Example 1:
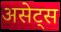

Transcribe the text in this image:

असेट्स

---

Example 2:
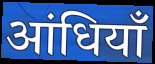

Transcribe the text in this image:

आंधियाँ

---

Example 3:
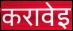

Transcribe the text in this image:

करावेइ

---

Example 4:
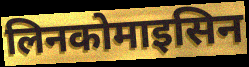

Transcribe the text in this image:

लिनकोमाइसिन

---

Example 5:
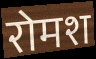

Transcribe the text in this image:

रोमश